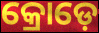
କ୍ରୋଡ଼େ